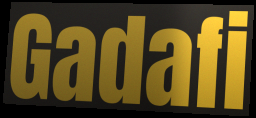
Gadafi